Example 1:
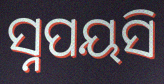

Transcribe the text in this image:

ସ୍ନପୟସି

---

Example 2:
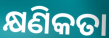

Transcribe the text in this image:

କ୍ଷଣିକତା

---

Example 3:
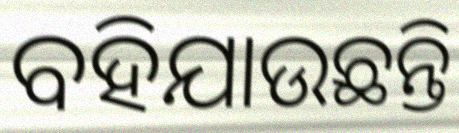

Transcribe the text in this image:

ବହିଯାଉଛନ୍ତି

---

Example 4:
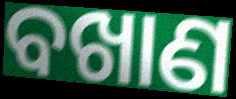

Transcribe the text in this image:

ବଖାଣ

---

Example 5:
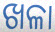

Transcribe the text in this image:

ଖଳା